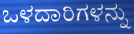
ಒಳದಾರಿಗಳನ್ನು